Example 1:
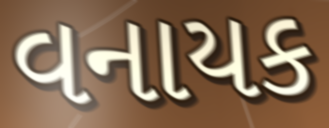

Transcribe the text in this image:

વનાયક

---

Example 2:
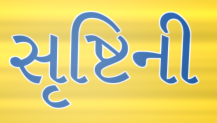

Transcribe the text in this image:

સૃષ્ટિની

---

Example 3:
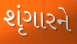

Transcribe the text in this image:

શૃંગારને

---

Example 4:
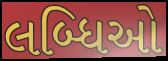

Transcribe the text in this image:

લબ્ધિઓ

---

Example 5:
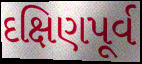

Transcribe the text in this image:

દક્ષિણપૂર્વ